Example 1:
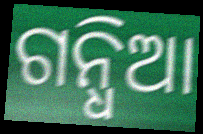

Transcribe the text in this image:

ଗନ୍ଧିଆ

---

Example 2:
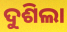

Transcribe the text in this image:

ଦୁଶିଲା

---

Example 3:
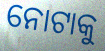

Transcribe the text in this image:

ନୋଟାକୁ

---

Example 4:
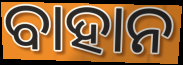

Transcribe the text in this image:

ବାହାନ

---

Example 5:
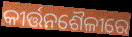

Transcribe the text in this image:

କୀର୍ତ୍ତନଶୈଳୀରେ